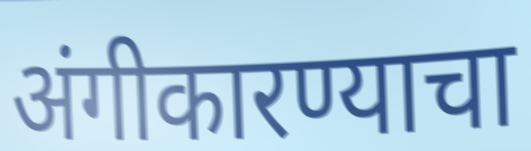
अंगीकारण्याचा